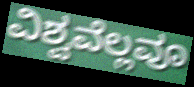
ವಿಶ್ವವೆಲ್ಲವೂ